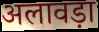
अलावड़ा